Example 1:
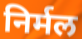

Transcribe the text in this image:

निर्मल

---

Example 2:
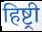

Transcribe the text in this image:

हिष्ट्री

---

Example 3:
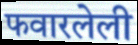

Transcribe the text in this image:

फवारलेली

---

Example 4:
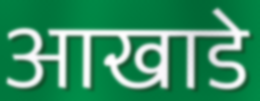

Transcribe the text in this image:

आखाडे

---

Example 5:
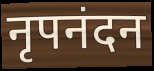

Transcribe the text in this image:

नृपनंदन